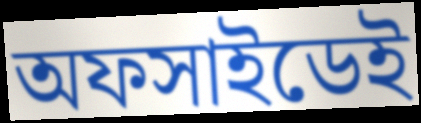
অফসাইডেই